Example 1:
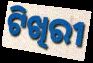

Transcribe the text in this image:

ଟିଖିରୀ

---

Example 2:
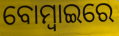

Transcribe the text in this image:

ବୋମ୍ୱାଇରେ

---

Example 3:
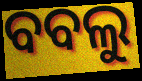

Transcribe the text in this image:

ବବଲୁ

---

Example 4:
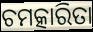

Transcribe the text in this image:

ଚମତ୍କାରିତା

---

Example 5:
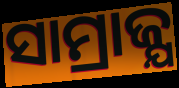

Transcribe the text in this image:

ସାମ୍ରାଜ୍ଯ